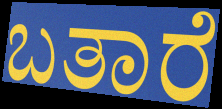
ಬತಾರೆ